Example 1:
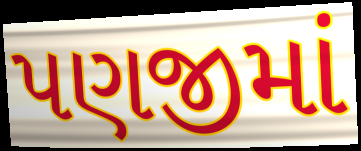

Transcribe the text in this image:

પણજીમાં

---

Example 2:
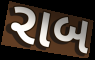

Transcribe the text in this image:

રાબ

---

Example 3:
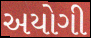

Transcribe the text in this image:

અયોગી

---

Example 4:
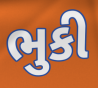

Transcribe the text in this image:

ભુકી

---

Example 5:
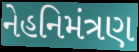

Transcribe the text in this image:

નેહનિમંત્રણ